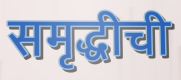
समृद्धीची